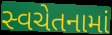
સ્વચેતનામાં